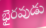
భైరవుడు